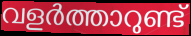
വളർത്താറുണ്ട്